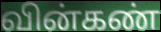
வின்கண்